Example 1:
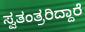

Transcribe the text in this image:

ಸ್ವತಂತ್ರರಿದ್ದಾರೆ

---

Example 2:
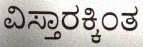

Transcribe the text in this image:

ವಿಸ್ತಾರಕ್ಕಿಂತ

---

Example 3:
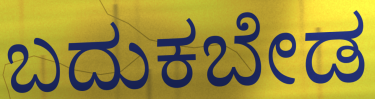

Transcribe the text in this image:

ಬದುಕಬೇಡ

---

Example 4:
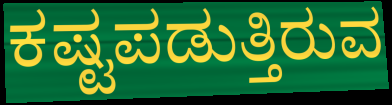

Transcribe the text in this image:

ಕಷ್ಟಪಡುತ್ತಿರುವ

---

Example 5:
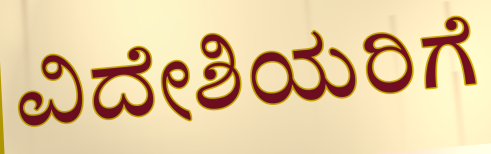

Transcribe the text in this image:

ವಿದೇಶಿಯರಿಗೆ